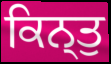
ਕਿਨ੍ਤੁ